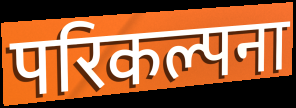
परिकल्पना